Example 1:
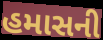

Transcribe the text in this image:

હમાસની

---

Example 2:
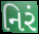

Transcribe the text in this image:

નિરં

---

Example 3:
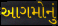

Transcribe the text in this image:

આગમોનું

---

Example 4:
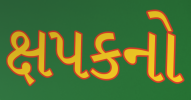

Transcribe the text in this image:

ક્ષપકનો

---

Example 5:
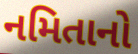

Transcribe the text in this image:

નમિતાનો